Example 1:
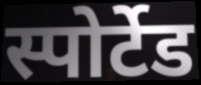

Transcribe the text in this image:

स्पोर्टेड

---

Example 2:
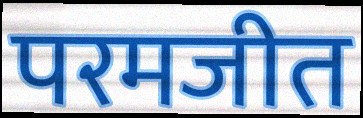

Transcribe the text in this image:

परमजीत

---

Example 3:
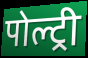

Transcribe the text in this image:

पोल्ट्री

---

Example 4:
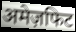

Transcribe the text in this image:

अमेज़फिट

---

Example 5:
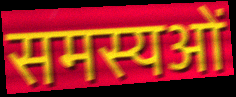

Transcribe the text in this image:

समस्यओं